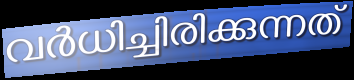
വർധിച്ചിരിക്കുന്നത്